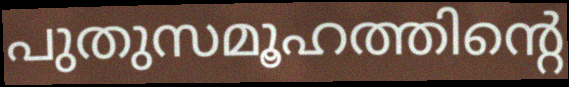
പുതുസമൂഹത്തിന്റെ